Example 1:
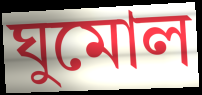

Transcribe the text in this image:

ঘুমোল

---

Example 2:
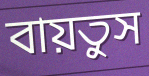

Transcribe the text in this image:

বায়তুস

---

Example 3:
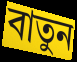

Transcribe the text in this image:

বাতুন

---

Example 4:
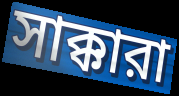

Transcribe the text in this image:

সাক্কারা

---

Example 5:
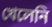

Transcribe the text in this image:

খেলেনি